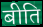
बीति